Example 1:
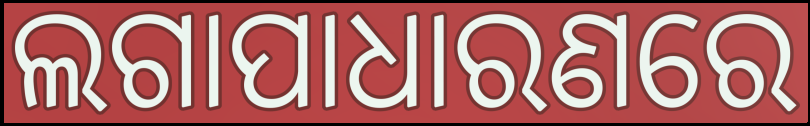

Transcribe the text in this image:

ଲଗାପାଧାରଣରେ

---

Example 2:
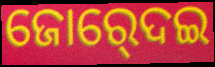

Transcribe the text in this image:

ଜୋର୍‍ଦେଇ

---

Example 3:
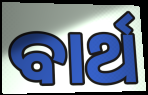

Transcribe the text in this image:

ବାର୍ଥ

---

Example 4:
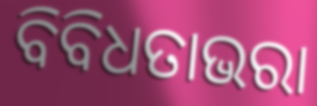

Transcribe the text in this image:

ବିବିଧତାଭରା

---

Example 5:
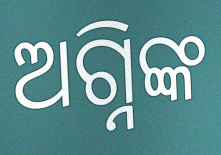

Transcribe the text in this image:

ଅଗ୍ନିଙ୍କ